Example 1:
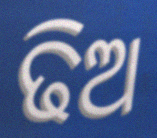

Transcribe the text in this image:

ଢିଅ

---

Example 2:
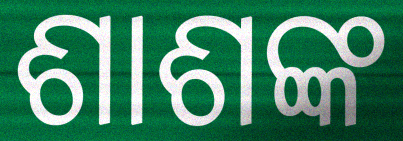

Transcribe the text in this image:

ଶାଶଙ୍କ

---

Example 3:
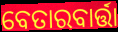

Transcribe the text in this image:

ବେତାରବାର୍ତ୍ତା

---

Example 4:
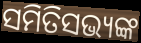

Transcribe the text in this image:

ସମିତିସଭ୍ୟଙ୍କ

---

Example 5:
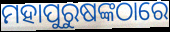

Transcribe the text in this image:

ମହାପୁରୁଷଙ୍କଠାରେ